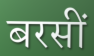
बरसीं